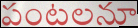
పంటలనూ